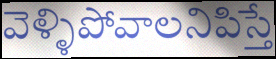
వెళ్ళిపోవాలనిపిస్తే